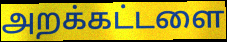
அறக்கட்டளை